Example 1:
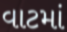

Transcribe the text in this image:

વાટમાં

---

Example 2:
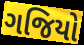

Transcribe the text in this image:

ગજિયો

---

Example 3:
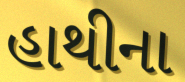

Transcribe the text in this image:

હાથીના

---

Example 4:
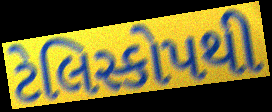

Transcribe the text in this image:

ટેલિસ્કોપથી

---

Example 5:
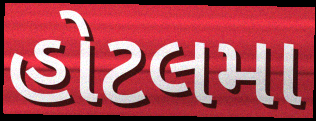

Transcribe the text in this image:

હોટલમા